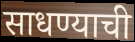
साधण्याची